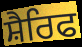
ਸ਼ੈਰਿਫ